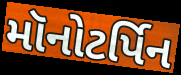
મૉનોટર્પિન